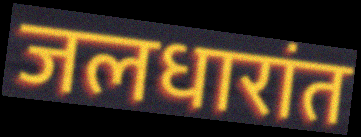
जलधारांत